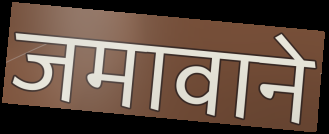
जमावाने